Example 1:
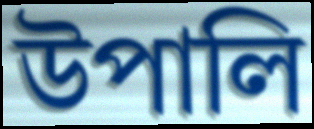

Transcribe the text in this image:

উপালি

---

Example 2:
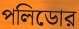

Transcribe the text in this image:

পলিডোর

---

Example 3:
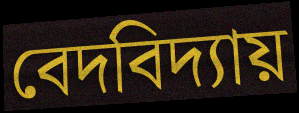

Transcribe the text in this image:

বেদবিদ্যায়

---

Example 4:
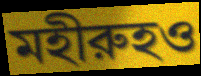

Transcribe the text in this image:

মহীরুহও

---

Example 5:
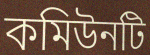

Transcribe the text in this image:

কমিউনটি